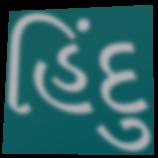
હિંદુ